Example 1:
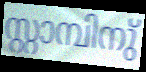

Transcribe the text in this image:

സ്റ്റാമ്പിനു്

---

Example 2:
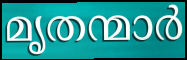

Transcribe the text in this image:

മൃതന്മാർ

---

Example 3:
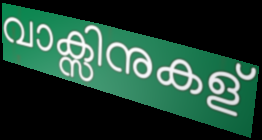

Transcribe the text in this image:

വാക്സിനുകള്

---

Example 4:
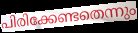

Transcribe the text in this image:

പിരിക്കേണ്ടതെന്നും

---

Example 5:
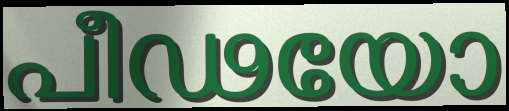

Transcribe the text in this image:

പീഢയോ